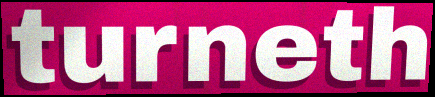
turneth